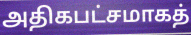
அதிகபட்சமாகத்